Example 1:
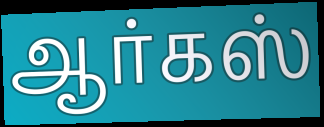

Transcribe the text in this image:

ஆர்கஸ்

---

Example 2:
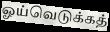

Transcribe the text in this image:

ஓய்வெடுக்கத்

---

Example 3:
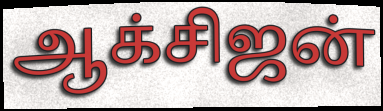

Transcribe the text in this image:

ஆக்சிஜன்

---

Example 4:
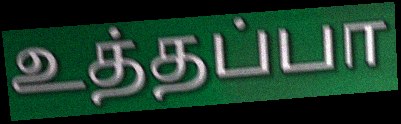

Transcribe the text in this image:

உத்தப்பா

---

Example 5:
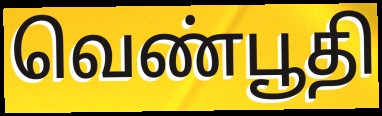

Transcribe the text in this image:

வெண்பூதி